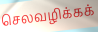
செலவழிக்கக்